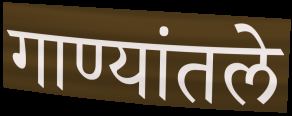
गाण्यांतले